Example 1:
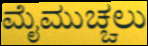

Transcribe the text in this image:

ಮೈಮುಚ್ಚಲು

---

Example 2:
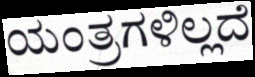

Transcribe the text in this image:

ಯಂತ್ರಗಳಿಲ್ಲದೆ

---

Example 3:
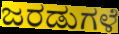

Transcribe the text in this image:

ಜರಡುಗಳೆ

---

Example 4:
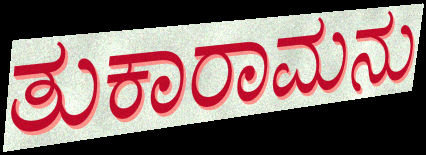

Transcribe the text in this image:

ತುಕಾರಾಮನು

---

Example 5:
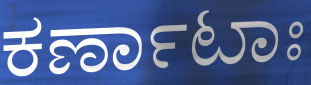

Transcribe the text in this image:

ಕರ್ಣಾಟಾಃ